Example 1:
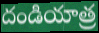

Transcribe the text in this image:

దండియాత్ర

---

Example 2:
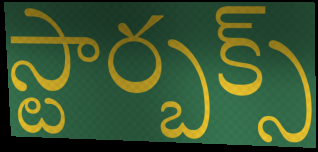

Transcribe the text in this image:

స్టార్బక్స్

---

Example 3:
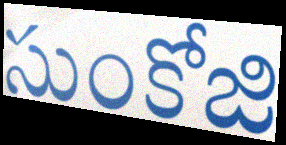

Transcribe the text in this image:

సుంకోజి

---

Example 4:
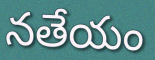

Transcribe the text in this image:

నతేయం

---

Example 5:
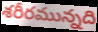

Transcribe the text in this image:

శరీరమున్నది